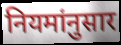
नियमांनुसार